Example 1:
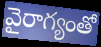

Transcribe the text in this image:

వైరాగ్యంతో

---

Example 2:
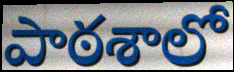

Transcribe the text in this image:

పాఠశాలో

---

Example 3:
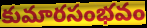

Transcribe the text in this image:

కుమారసంభవం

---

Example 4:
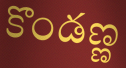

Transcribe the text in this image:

కొండణ్ణ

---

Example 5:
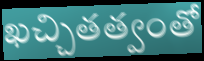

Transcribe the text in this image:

ఖచ్చితత్వంతో